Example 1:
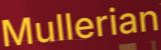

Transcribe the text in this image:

Mullerian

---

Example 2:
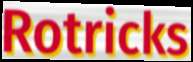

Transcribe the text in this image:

Rotricks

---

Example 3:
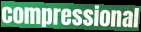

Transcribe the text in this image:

compressional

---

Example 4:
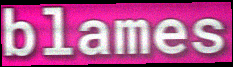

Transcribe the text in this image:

blames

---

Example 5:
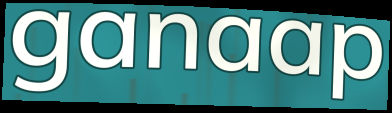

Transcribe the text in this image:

ganaap